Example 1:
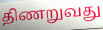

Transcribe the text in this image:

திணறுவது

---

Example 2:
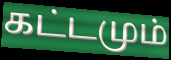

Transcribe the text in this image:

கட்டமும்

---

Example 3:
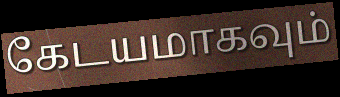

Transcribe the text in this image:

கேடயமாகவும்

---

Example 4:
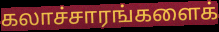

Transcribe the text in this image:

கலாச்சாரங்களைக்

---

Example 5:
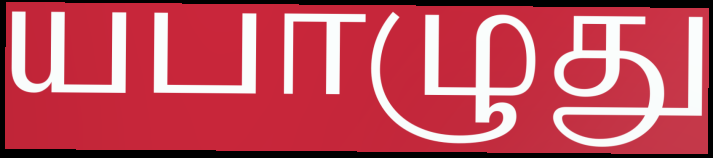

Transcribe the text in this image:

யபாழுது